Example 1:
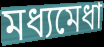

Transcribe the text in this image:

মধ্যমেধা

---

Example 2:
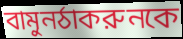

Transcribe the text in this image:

বামুনঠাকরুনকে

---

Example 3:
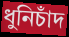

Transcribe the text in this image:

ধুনিচাঁদ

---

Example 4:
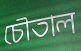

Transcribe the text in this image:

চৌতাল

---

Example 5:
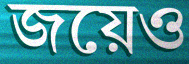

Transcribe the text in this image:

জয়েও